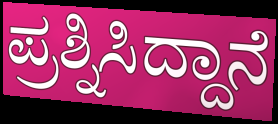
ಪ್ರಶ್ನಿಸಿದ್ದಾನೆ